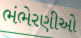
ભંભેરણીઓ